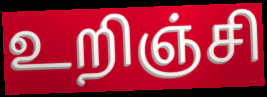
உறிஞ்சி